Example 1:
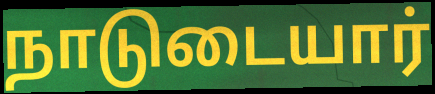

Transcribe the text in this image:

நாடுடையார்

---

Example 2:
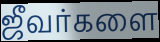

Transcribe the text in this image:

ஜீவர்களை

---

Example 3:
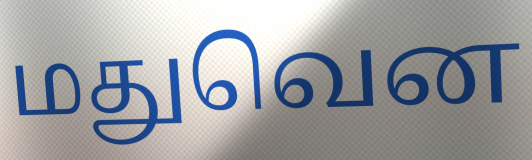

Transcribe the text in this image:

மதுவென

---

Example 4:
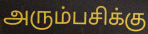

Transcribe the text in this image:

அரும்பசிக்கு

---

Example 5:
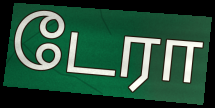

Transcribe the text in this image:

டேரா